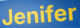
Jenifer